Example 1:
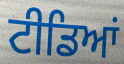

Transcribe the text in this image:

ਟੀਡਿਆਂ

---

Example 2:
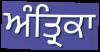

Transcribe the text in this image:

ਅੰਤ੍ਰਿਕਾ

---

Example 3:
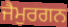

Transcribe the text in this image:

ਜੈਮੁਰਗਨ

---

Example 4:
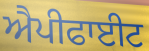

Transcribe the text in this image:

ਐਪੀਫਾਈਟ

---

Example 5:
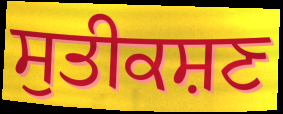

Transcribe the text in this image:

ਸੁਤੀਕਸ਼ਣ